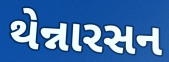
થેન્નારસન